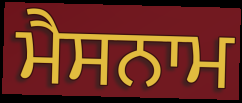
ਮੈਸਨਾਮ